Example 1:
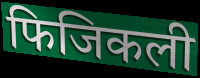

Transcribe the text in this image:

फिजिकली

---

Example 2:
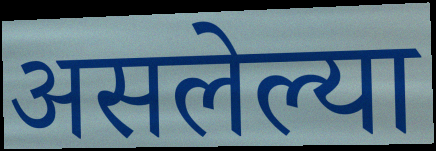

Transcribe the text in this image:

असलेल्या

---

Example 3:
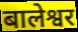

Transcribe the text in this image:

बालेश्वर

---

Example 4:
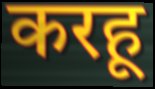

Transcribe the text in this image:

करहू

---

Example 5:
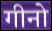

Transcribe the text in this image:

गीनो